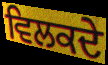
ਵਿਲਕਦੇ